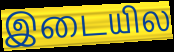
இடையில